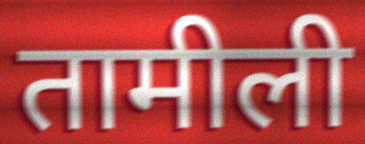
तामीली